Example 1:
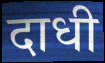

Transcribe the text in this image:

दाधी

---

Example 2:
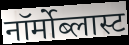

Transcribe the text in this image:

नॉर्मोब्लास्ट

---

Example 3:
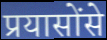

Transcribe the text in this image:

प्रयासोंसे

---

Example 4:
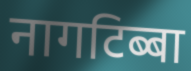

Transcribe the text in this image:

नागटिब्बा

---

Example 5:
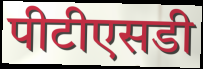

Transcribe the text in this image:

पीटीएसडी